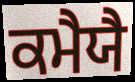
ਕਮੈਯੈ